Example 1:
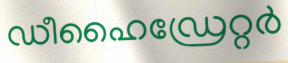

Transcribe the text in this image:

ഡീഹൈഡ്രേറ്റർ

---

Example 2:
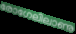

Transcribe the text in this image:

രോഗേലിലാണു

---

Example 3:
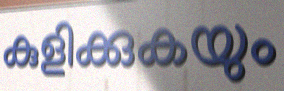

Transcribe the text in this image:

കുളിക്കുകയും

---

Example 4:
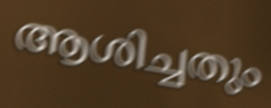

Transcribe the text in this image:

ആശിച്ചതും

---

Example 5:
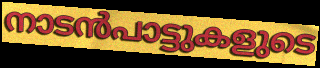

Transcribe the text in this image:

നാടൻപാട്ടുകളുടെ